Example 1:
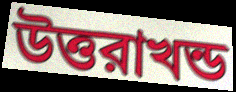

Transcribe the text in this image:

উত্তরাখন্ড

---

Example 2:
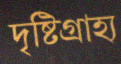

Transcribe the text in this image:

দৃষ্টিগ্রাহ্য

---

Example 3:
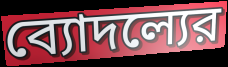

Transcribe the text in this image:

ব্যোদল্যের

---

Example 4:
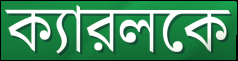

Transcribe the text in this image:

ক্যারলকে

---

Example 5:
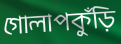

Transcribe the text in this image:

গোলাপকুঁড়ি